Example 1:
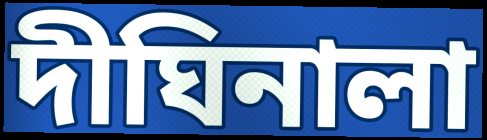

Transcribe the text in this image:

দীঘিনালা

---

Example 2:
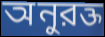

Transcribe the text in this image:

অনুরক্ত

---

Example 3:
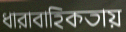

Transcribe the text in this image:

ধারাবাহিকতায়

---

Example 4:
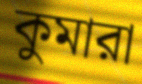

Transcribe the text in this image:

কুমারা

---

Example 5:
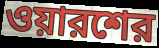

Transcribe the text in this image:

ওয়ারশের